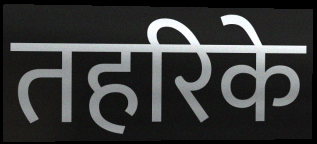
तहरिके